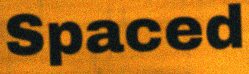
Spaced